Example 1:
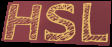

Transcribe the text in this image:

HSL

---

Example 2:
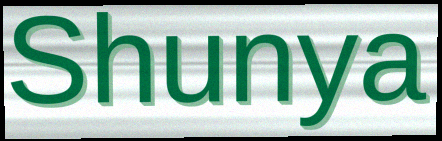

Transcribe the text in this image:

Shunya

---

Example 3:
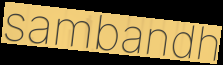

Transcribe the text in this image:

sambandh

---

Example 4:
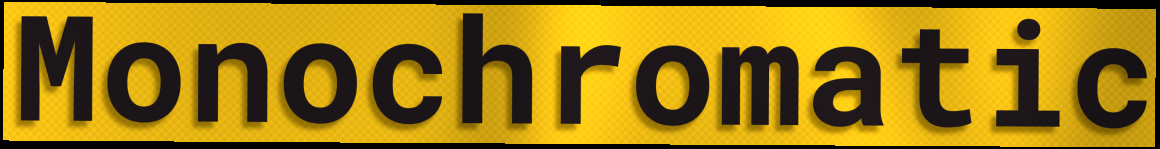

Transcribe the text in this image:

Monochromatic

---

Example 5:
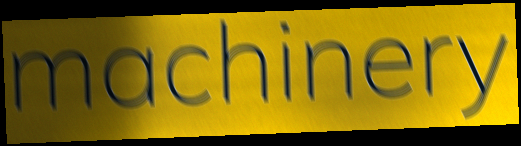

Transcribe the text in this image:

machinery